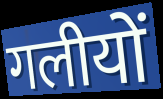
गलीयों